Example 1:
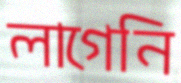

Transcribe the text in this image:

লাগেনি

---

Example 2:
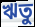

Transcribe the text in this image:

ঋতু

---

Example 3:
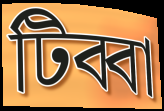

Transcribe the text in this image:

টিব্বা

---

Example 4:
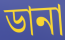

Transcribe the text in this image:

ডানা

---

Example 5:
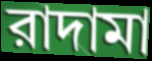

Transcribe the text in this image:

রাদামা